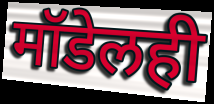
मॉडेलही